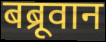
बब्रूवान